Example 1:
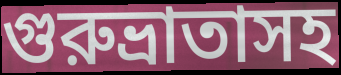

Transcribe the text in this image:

গুরুভ্রাতাসহ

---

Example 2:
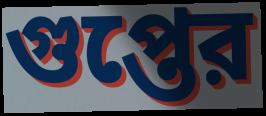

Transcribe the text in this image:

গুপ্তের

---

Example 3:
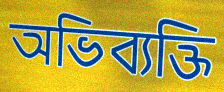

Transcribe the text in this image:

অভিব্যক্তি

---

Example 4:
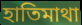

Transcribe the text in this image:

হাতিমাথা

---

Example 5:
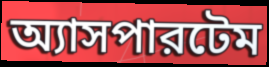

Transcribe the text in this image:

অ্যাসপারটেম